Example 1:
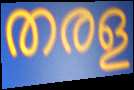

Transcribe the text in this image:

തരള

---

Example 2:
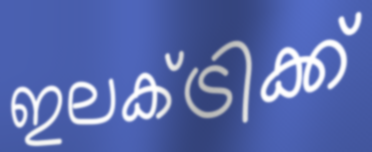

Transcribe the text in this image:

ഇലക്ട്രിക്ക്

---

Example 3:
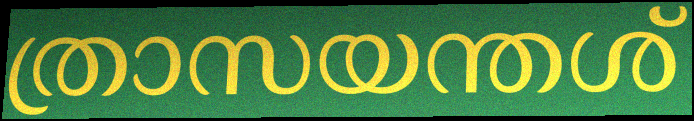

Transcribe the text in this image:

ത്രാസയന്തശ്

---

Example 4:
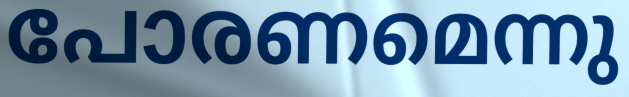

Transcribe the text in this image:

പോരണമെന്നു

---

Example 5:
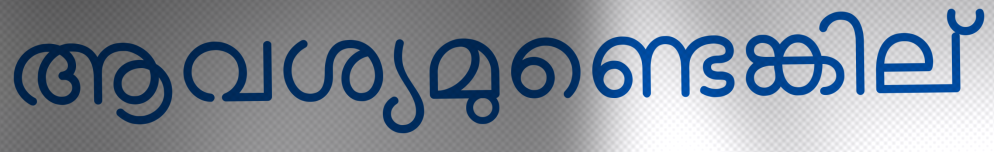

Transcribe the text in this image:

ആവശ്യമുണ്ടെങ്കില്